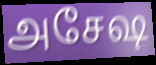
அசேஷ